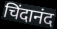
चिंदानंद